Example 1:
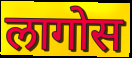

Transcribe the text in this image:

लागोस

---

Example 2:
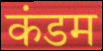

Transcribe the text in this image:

कंडम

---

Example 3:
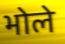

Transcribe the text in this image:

भोले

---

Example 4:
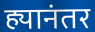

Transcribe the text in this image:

ह्यानंतर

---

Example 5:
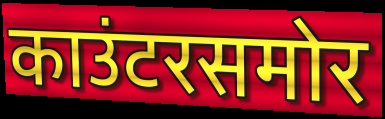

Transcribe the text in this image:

काउंटरसमोर